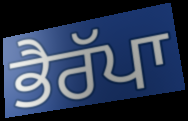
ਭੈਰੱਪਾ